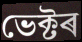
ভেক্টৰ